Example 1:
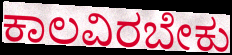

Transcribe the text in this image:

ಕಾಲವಿರಬೇಕು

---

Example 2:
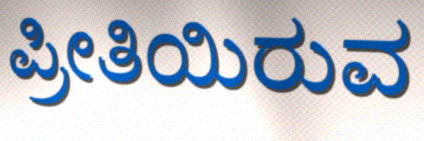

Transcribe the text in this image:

ಪ್ರೀತಿಯಿರುವ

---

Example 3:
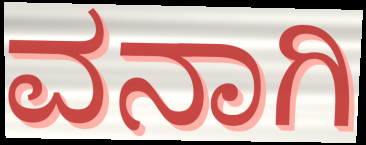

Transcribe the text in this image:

ವನಾಗಿ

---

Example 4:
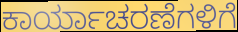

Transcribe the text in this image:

ಕಾರ್ಯಾಚರಣೆಗಳಿಗೆ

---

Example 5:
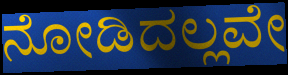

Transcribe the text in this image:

ನೋಡಿದಲ್ಲವೇ